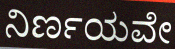
ನಿರ್ಣಯವೇ